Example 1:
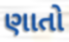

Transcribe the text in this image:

ણાતો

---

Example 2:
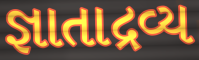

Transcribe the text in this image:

જ્ઞાતાદ્રવ્ય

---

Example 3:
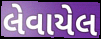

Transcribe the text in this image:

લેવાયેલ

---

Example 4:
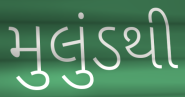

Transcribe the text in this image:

મુલુંડથી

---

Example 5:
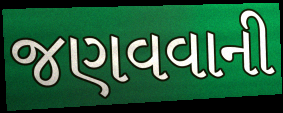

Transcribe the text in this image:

જણવવાની